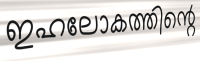
ഇഹലോകത്തിന്റെ